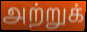
அற்றுக்